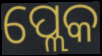
ପ୍ଲେକ